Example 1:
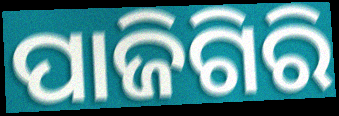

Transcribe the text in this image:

ପାଜିଗିରି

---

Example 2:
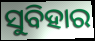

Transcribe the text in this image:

ସୁବିହାର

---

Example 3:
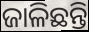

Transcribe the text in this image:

ଜାଳିଛନ୍ତି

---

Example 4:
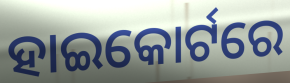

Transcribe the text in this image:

ହାଇକୋର୍ଟରେ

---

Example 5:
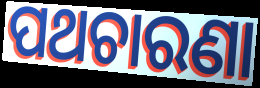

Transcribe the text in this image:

ପଥଚାରଣା